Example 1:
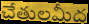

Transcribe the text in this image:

చేతులమీద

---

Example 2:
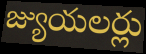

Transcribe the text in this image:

జ్యుయలర్లు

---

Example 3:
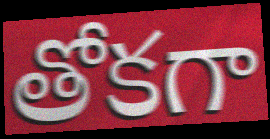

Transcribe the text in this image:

తోకగా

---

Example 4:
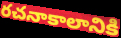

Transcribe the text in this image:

రచనాకాలానికి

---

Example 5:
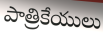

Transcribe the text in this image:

పాత్రికేయులు